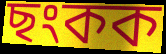
ছংকক